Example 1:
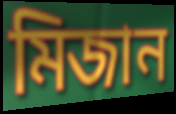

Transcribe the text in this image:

মিজান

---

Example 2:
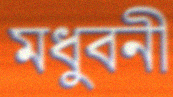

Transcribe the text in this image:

মধুবনী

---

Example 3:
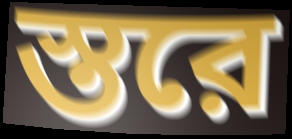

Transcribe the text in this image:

স্তরে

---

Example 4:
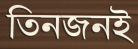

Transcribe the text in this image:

তিনজনই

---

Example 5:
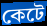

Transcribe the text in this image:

কেটে